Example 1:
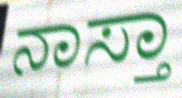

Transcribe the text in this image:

ನಾಸ್ತಾ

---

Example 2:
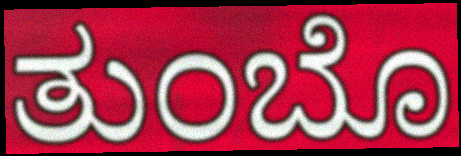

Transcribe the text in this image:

ತುಂಬೊ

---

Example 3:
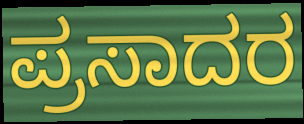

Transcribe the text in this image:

ಪ್ರಸಾದರ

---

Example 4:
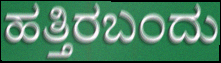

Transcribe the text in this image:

ಹತ್ತಿರಬಂದು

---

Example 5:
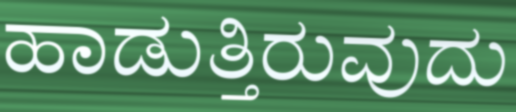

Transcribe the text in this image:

ಹಾಡುತ್ತಿರುವುದು